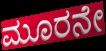
ಮೂರನೇ